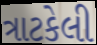
ત્રાટકેલી